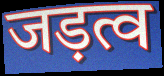
जड़त्व